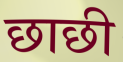
छाछी